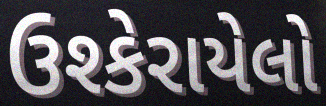
ઉશ્કેરાયેલો